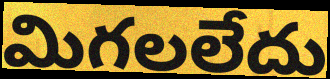
మిగలలేదు